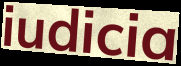
iudicia